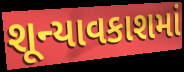
શૂન્યાવકાશમાં